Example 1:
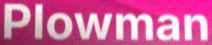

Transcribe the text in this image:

Plowman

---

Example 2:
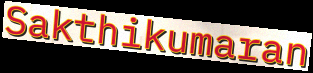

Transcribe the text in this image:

Sakthikumaran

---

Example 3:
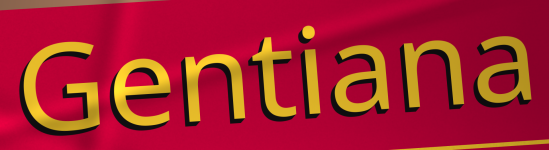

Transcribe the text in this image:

Gentiana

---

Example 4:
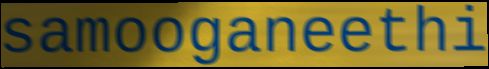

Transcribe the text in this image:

samooganeethi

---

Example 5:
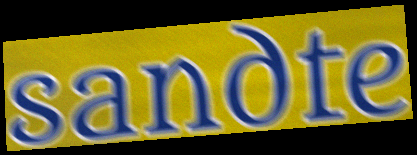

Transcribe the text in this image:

sandte